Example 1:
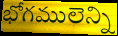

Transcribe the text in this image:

భోగములెన్ని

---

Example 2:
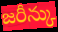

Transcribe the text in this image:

జరీన్కు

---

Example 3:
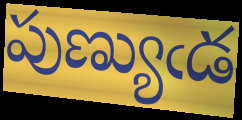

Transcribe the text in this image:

పుణ్యుఁడ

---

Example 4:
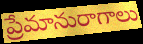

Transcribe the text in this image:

ప్రేమానురాగాలు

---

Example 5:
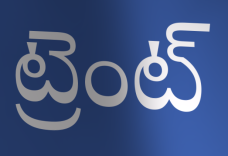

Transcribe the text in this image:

ట్రెంట్